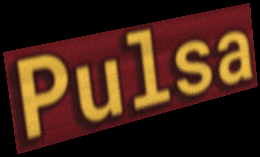
Pulsa